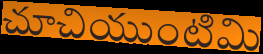
చూచియుంటిమి